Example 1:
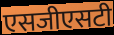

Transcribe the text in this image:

एसजीएसटी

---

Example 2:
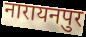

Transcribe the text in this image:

नारायनपुर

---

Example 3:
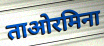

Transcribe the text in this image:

ताओरमिना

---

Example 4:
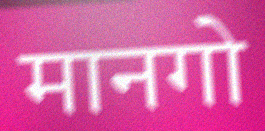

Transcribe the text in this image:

मानगो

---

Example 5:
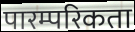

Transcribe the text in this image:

पारम्परिकता